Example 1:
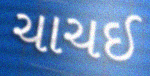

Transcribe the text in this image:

ચાચઈ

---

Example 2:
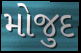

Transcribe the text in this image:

મોજુદ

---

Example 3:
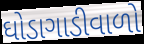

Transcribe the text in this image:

ઘોડાગાડીવાળો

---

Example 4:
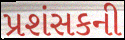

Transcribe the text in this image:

પ્રશંસકની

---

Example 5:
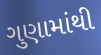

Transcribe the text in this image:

ગુણામાંથી